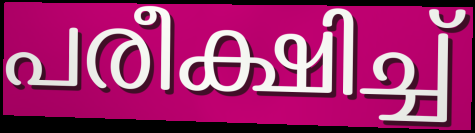
പരീക്ഷിച്ച്